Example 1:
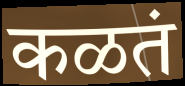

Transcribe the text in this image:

कळतं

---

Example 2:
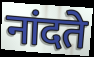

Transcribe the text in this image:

नांदते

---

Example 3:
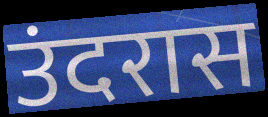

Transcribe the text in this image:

उंदरास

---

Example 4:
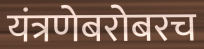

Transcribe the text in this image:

यंत्रणेबरोबरच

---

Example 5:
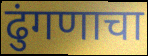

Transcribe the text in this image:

ढुंगणाचा